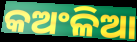
କଅଂଳିଆ